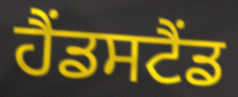
ਹੈਂਡਸਟੈਂਡ